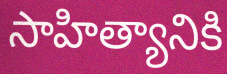
సాహిత్యానికి